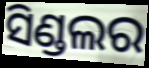
ସିଣ୍ଡଲର